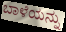
ಬಾಳೆಯನ್ನು